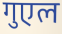
गुएल